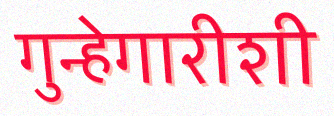
गुन्हेगारीशी